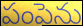
పంపెను